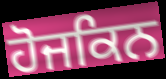
ਹੋਜਕਿਨ